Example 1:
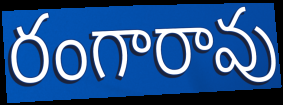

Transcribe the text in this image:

రంగారావు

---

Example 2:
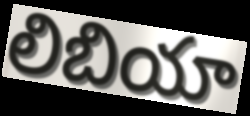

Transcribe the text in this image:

లిబియా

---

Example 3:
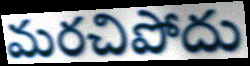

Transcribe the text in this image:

మరచిపోదు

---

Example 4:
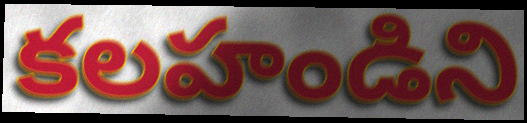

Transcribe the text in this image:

కలహండిని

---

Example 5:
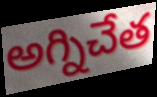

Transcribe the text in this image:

అగ్నిచేత